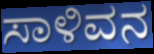
ಸಾಳಿವನ